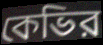
কেভির